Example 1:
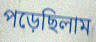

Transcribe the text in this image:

পড়েছিলাম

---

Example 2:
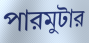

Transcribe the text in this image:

পারমুটার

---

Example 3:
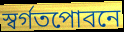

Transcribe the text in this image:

স্বর্গতপোবনে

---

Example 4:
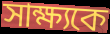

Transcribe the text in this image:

সাক্ষ্যকে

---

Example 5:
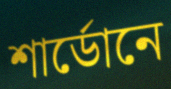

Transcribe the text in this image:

শার্ডোনে